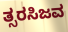
ತ್ಸರಸಿಜವ